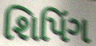
શિપિંગ